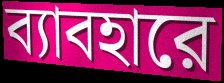
ব্যাবহারে